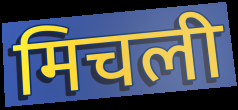
मिचली